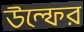
উল্ফের